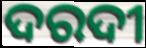
ଦରଦୀ